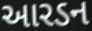
આરડન